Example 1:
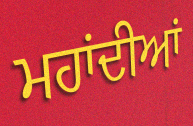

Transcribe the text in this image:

ਮਹਾਂਦੀਆਂ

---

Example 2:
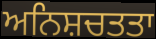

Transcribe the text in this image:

ਅਨਿਸ਼ਚਤਤਾ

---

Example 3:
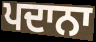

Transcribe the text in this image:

ਪਦਾਨਾ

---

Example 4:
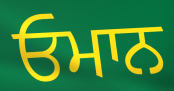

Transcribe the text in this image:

ਓਮਾਨ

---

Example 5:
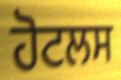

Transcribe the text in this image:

ਹੋਟਲਸ